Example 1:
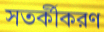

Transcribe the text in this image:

সতর্কীকরণ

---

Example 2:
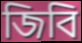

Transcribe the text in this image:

জিবি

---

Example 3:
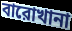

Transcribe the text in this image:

বারোখানা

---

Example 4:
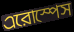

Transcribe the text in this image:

এরোস্পেস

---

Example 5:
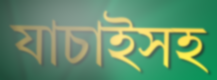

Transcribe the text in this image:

যাচাইসহ